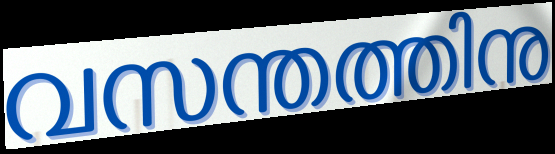
വസന്തത്തിനു